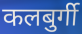
कलबुर्गी